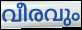
വീരവും